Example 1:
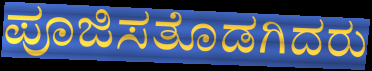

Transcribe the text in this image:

ಪೂಜಿಸತೊಡಗಿದರು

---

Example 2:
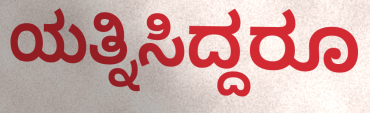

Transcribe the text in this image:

ಯತ್ನಿಸಿದ್ದರೂ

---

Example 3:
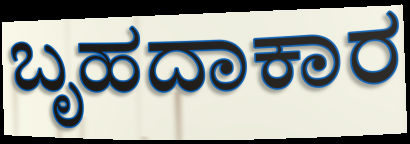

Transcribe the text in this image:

ಬೃಹದಾಕಾರ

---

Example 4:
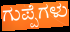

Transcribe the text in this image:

ಗುಪ್ಪೆಗಳು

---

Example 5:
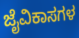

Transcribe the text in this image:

ಜೈವಿಕಾಸಗಳ